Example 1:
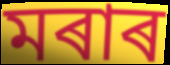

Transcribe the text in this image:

মৰাৰ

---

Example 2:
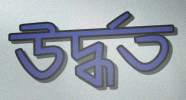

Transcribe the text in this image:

উৰ্দ্ধত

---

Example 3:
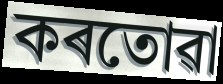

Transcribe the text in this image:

কৰতোৱা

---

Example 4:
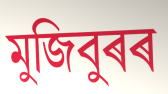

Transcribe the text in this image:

মুজিবুৰৰ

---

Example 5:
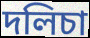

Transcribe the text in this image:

দলিচা